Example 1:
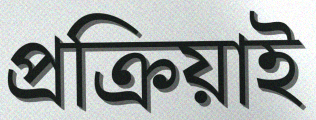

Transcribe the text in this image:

প্ৰক্ৰিয়াই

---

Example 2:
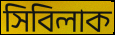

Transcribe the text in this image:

সিবিলাক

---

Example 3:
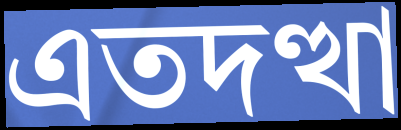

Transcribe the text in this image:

এতদত্থা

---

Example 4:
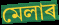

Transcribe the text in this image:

মেলাৰ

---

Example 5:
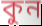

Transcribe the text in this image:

কুন